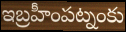
ఇబ్రహీంపట్నంకు